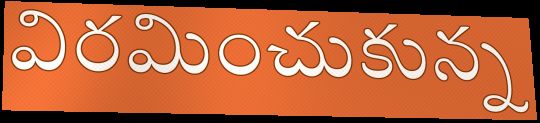
విరమించుకున్న